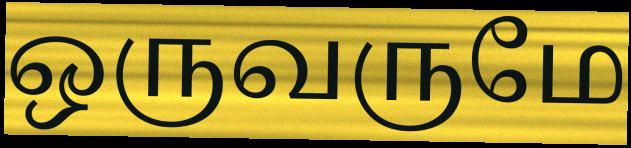
ஒருவருமே